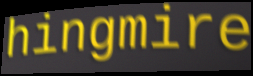
hingmire